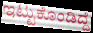
ಇಟ್ಟುಕೊಂಡಿದ್ದೆ